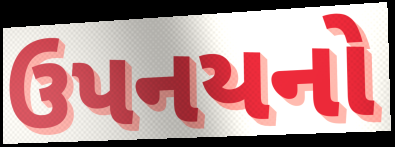
ઉપનયનો